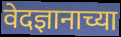
वेदज्ञानाच्या